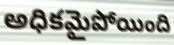
అధికమైపోయింది